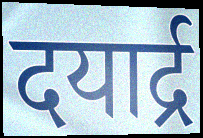
दयार्द्र